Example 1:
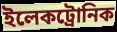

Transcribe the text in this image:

ইলেকট্রোনিক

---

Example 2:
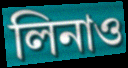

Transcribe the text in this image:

লিনাও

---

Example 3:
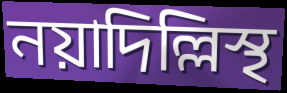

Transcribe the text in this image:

নয়াদিল্লিস্থ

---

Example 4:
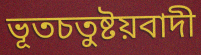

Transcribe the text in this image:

ভূতচতুষ্টয়বাদী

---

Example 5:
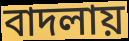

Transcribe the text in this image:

বাদলায়